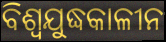
ବିଶ୍ୱଯୁଦ୍ଧକାଳୀନ